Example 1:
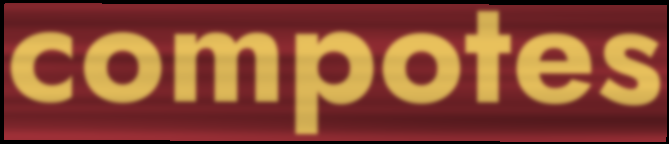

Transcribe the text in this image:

compotes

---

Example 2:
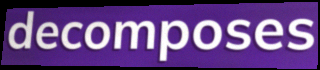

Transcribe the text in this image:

decomposes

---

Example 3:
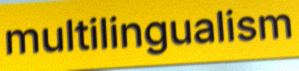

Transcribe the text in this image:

multilingualism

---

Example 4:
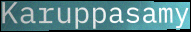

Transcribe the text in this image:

Karuppasamy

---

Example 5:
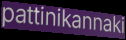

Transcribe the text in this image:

pattinikannaki